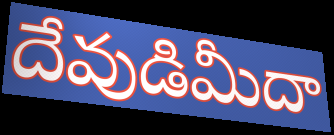
దేవుడిమీదా